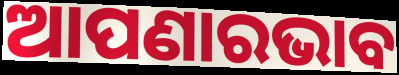
ଆପଣାରଭାବ